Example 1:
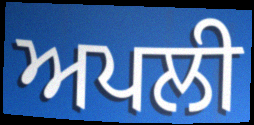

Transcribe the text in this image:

ਅਪਲੀ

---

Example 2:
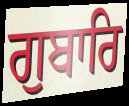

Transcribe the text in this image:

ਗੁਬਾਰਿ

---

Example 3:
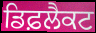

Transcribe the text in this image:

ਡਿਫ਼ਲੈਕਟ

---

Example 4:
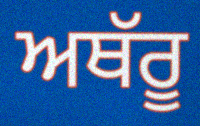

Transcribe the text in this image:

ਅਥੱਰੂ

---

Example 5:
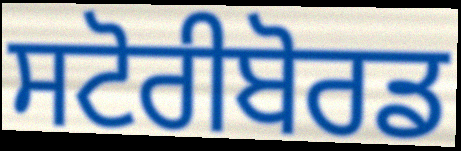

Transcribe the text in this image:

ਸਟੋਰੀਬੋਰਡ